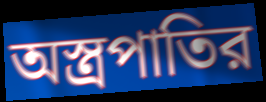
অস্ত্রপাতির